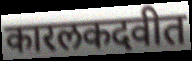
कारलकदवीत